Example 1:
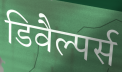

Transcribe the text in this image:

डिवैल्पर्स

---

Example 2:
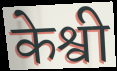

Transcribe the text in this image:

केश्वी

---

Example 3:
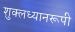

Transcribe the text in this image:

शुक्लध्यानरूपी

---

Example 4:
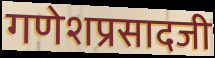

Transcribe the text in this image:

गणेशप्रसादजी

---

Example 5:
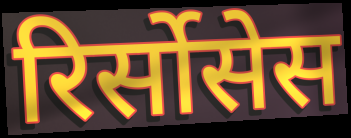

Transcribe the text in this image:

रिर्सोसेस